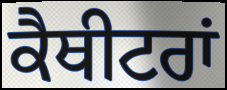
ਕੈਥੀਟਰਾਂ